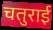
चतुराई